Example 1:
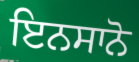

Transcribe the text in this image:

ਇਨਸਾਨੋ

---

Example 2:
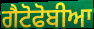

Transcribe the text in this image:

ਗੈਟੋਫੋਬੀਆ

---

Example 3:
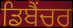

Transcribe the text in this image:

ਡਿਬੈਂਚਰ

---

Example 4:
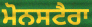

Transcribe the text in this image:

ਮੋਨਸਟੈਰਾ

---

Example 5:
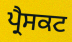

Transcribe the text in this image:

ਪ੍ਰੈਸਕਟ